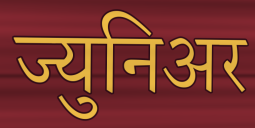
ज्युनिअर